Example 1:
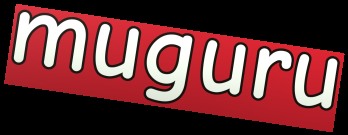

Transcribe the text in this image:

muguru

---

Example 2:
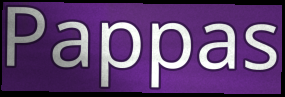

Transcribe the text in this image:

Pappas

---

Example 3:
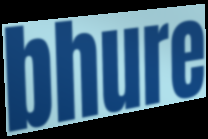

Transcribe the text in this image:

bhure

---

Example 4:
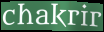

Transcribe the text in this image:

chakrir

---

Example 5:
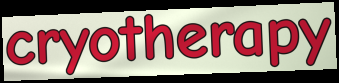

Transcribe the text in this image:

cryotherapy